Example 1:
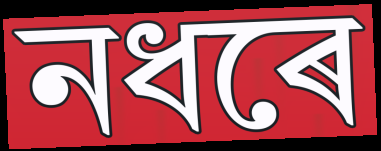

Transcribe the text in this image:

নধৰে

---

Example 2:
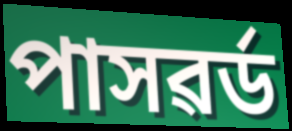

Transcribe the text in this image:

পাসৱৰ্ড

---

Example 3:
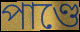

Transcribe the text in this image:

পাণ্ডে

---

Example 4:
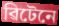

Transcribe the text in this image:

ৱিটেনে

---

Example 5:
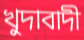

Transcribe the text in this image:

খুদাবাদী